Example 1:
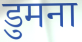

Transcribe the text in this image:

डुमना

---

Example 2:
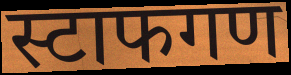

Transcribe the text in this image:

स्टाफगण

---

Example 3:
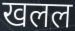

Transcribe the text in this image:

खलल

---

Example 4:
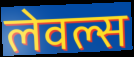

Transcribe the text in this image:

लेवल्स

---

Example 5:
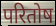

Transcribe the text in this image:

परितोष